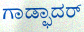
ಗಾಡ್ಫಾದರ್